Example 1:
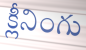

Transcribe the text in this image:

క్లీనింగు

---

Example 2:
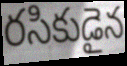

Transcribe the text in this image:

రసికుడైన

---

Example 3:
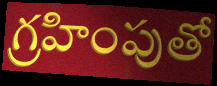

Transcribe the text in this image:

గ్రహింపుతో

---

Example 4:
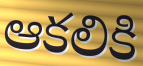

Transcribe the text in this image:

ఆకలికి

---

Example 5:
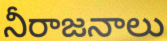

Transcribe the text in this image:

నీరాజనాలు